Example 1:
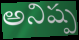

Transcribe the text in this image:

అనిష్ప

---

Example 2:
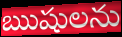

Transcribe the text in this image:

ఋషులను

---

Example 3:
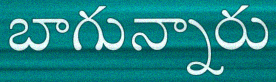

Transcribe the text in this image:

బాగున్నారు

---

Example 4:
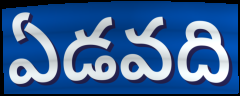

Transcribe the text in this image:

ఏడవది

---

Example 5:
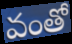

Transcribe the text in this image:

వంతో